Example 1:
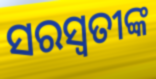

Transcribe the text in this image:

ସରସ୍ବତୀଙ୍କ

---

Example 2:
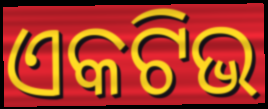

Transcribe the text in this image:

ଏକଟିଭ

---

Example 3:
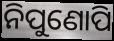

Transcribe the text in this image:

ନିପୁଣୋପି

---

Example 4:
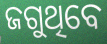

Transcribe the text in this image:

ଜଗୁଥିବେ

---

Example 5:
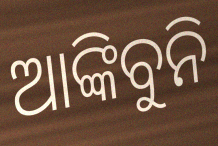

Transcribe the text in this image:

ଆଙ୍କିବୁନି